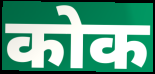
कोक